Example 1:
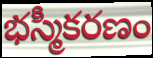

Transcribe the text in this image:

భస్మీకరణం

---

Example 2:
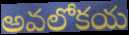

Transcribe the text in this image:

అవలోకయ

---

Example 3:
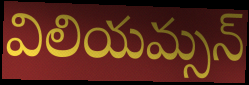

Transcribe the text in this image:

విలియమ్సన్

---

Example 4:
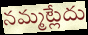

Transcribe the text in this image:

నమ్మట్లేదు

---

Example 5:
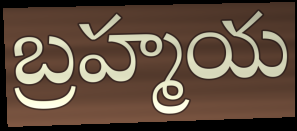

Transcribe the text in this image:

బ్రహ్మయ